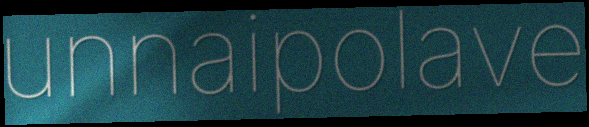
unnaipolave